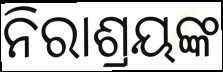
ନିରାଶ୍ରୟଙ୍କ